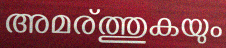
അമര്ത്തുകയും